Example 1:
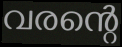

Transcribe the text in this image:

വരന്റെ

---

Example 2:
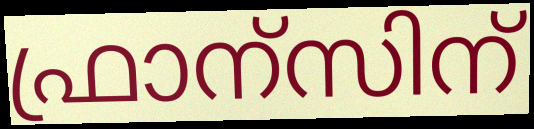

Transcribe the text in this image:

ഫ്രാന്സിന്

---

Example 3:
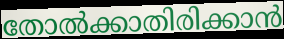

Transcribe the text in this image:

തോൽക്കാതിരിക്കാൻ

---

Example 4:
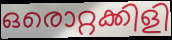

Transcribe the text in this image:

ഒരൊറ്റക്കിളി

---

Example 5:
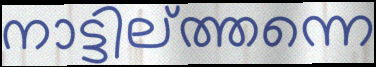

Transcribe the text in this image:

നാട്ടില്ത്തന്നെ